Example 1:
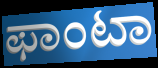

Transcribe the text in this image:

ಫಾಂಟಾ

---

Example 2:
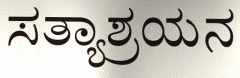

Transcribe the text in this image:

ಸತ್ಯಾಶ್ರಯನ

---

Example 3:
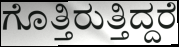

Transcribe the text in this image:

ಗೊತ್ತಿರುತ್ತಿದ್ದರೆ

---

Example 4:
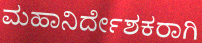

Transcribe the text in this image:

ಮಹಾನಿರ್ದೇಶಕರಾಗಿ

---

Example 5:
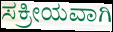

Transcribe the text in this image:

ಸಕ್ರೀಯವಾಗಿ